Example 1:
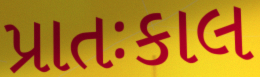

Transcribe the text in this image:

પ્રાતઃકાલ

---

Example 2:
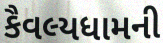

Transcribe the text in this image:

કૈવલ્યધામની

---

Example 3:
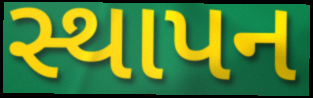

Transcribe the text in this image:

સ્થાપન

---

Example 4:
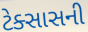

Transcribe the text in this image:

ટેક્સાસની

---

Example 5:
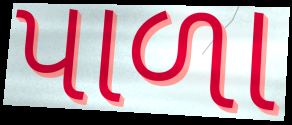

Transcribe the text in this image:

પાળા